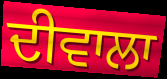
ਦੀਵਾਲਾ